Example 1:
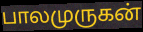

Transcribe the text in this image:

பாலமுருகன்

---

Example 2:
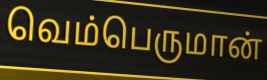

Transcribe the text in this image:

வெம்பெருமான்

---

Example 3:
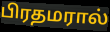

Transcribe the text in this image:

பிரதமரால்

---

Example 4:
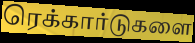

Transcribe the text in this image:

ரெக்கார்டுகளை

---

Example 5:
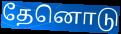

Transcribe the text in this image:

தேனொடு